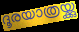
ദൂരയാത്രയ്ക്കു